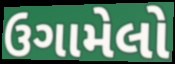
ઉગામેલો